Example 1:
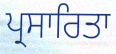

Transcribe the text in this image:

ਪ੍ਰਸਾਰਿਤਾ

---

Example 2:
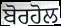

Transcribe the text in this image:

ਬੋਰਹੋਲ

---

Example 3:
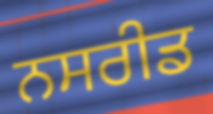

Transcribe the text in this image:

ਨਸਰੀਡ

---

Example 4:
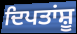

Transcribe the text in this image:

ਦਿਪਤਾਂਸ਼ੂ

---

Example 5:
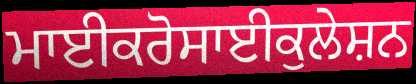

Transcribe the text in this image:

ਮਾਈਕਰੋਸਾਈਕੁਲੇਸ਼ਨ